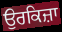
ਉਰਕਿਜ਼ਾ